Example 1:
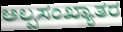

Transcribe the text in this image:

ಅಲ್ಪಸಂಖ್ಯಾತರ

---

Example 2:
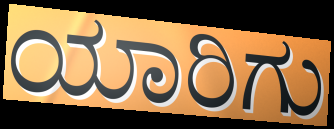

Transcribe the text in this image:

ಯಾರಿಗು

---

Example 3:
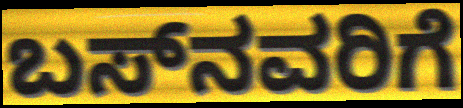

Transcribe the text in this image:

ಬಸ್‌ನವರಿಗೆ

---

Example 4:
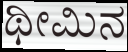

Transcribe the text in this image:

ಥೀಮಿನ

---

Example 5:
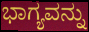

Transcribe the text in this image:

ಭಾಗ್ಯವನ್ನು